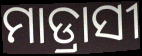
ମାଡ୍ରାସୀ